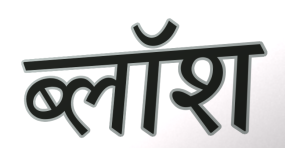
ब्लॉश